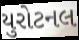
યુરોટનલ